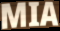
MIA